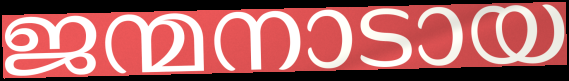
ജന്മനാടായ